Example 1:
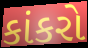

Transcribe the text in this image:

કાંકરો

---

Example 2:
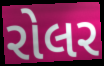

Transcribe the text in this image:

રોલર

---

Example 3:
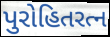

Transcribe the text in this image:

પુરોહિતરત્ન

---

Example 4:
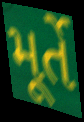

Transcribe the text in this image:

મૂર્તે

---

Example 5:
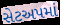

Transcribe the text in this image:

સેટઅપમાં